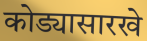
कोड्यासारखे